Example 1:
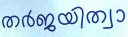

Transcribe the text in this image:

തർജയിത്വാ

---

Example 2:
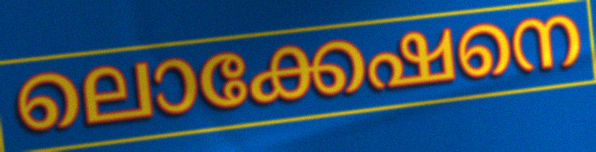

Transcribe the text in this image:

ലൊക്കേഷനെ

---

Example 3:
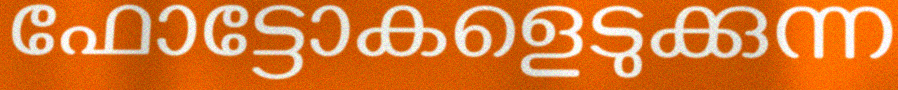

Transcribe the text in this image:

ഫോട്ടോകളെടുക്കുന്ന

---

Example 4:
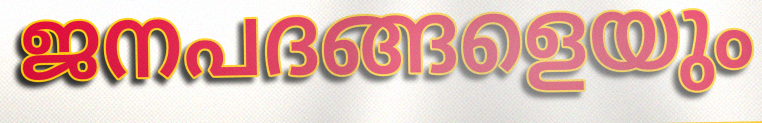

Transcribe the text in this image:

ജനപദങ്ങളെയും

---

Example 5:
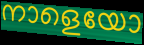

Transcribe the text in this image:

നാളെയോ